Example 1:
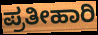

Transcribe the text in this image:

ಪ್ರತೀಹಾರಿ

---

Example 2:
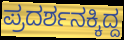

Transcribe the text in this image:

ಪ್ರದರ್ಶನಕ್ಕಿದ್ದ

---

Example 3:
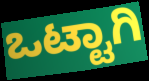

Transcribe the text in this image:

ಒಟ್ಟಾಗಿ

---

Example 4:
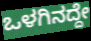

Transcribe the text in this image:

ಒಳಗಿನದ್ದೇ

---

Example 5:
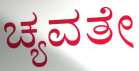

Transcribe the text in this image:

ಚ್ಯವತೇ